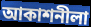
আকাশনীলা